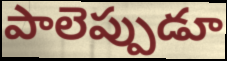
పాలెప్పుడూ